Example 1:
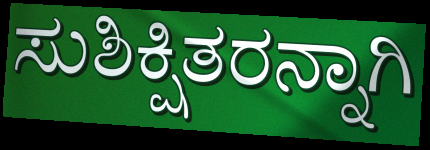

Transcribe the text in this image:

ಸುಶಿಕ್ಷಿತರನ್ನಾಗಿ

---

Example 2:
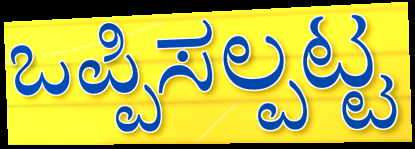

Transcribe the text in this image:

ಒಪ್ಪಿಸಲ್ಪಟ್ಟ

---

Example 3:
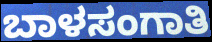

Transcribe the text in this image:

ಬಾಳಸಂಗಾತಿ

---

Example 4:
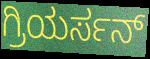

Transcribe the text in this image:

ಗ್ರಿಯರ್ಸನ್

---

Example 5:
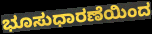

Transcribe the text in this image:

ಭೂಸುಧಾರಣೆಯಿಂದ